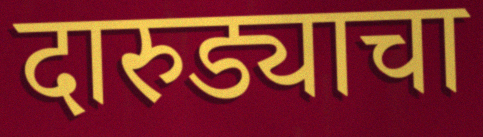
दारुड्याचा